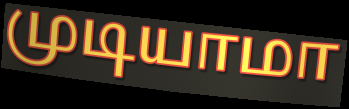
முடியாமா